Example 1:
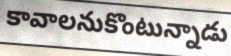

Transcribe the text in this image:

కావాలనుకొంటున్నాడు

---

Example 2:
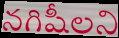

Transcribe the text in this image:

నగిషీలని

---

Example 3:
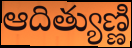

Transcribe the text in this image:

ఆదిత్యుణ్ణి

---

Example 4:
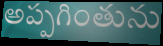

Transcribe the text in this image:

అప్పగింతును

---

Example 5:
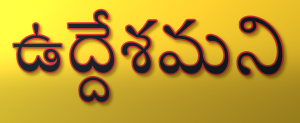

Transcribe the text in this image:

ఉద్దేశమని